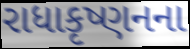
રાધાકૃષ્ણનના